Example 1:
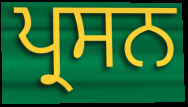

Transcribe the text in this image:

ਪ੍ਰਸਨ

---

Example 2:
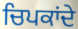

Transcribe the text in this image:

ਚਿਪਕਾਂਦੇ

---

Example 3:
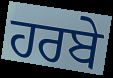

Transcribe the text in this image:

ਹਰਬੇ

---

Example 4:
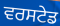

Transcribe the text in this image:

ਵਰਸਟੇਡ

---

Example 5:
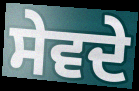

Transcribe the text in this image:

ਸੇਵਦੇ